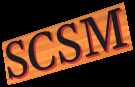
SCSM